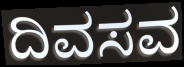
ದಿವಸವ